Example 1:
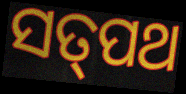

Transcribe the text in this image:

ସତ୍‌ପଥ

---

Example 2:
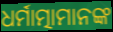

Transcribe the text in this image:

ଧର୍ମାତ୍ମାମାନଙ୍କ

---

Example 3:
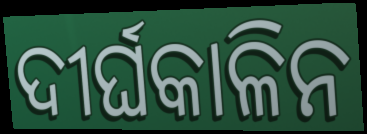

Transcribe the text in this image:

ଦୀର୍ଘକାଳିନ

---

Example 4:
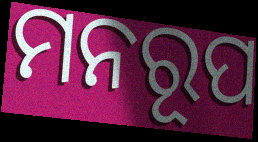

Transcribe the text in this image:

ମନରୂପ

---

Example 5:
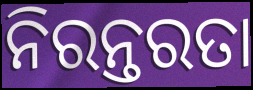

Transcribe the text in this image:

ନିରନ୍ତରତା